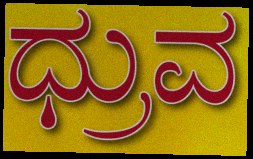
ಧ್ರುವ